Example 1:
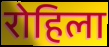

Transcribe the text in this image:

रोहिला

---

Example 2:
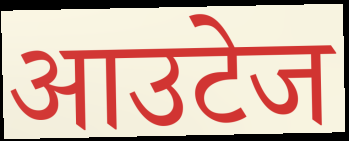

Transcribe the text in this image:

आउटेज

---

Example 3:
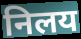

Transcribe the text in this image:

निलय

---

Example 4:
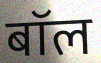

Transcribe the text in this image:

बॉल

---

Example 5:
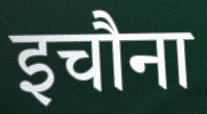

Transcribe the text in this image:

इचौना